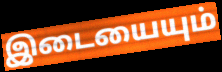
இடையையும்